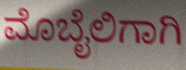
ಮೊಬೈಲಿಗಾಗಿ